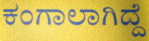
ಕಂಗಾಲಾಗಿದ್ದೆ